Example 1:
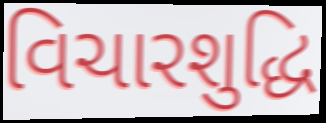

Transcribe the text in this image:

વિચારશુદ્ધિ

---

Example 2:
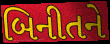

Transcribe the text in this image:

બિનીતને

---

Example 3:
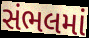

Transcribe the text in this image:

સંભલમાં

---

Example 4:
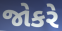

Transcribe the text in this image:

જોકરે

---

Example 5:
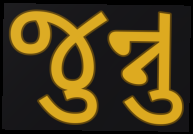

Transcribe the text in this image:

જુન્નુ